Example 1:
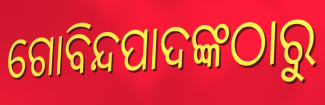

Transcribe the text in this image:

ଗୋବିନ୍ଦପାଦଙ୍କଠାରୁ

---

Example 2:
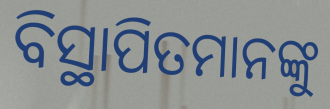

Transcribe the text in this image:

ବିସ୍ଥାପିତମାନଙ୍କୁ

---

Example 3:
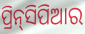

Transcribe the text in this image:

ପ୍ରିନ୍‌ସିପିଆର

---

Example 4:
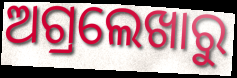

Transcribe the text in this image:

ଅଗ୍ରଲେଖାରୁ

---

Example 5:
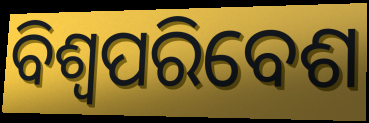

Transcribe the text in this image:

ବିଶ୍ୱପରିବେଶ